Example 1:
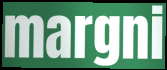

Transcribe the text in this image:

margni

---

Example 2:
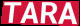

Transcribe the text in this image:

TARA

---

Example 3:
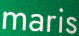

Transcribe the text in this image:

maris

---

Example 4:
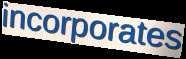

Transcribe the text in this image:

incorporates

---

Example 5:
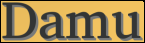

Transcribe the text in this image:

Damu